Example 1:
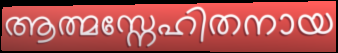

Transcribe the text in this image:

ആത്മസ്നേഹിതനായ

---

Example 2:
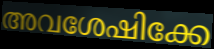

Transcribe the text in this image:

അവശേഷിക്കേ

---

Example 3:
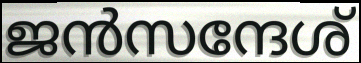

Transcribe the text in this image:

ജൻസന്ദേശ്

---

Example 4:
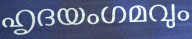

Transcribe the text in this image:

ഹൃദയംഗമവും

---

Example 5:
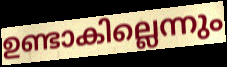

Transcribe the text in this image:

ഉണ്ടാകില്ലെന്നും